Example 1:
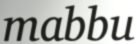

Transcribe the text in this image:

mabbu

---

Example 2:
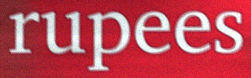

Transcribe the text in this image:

rupees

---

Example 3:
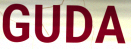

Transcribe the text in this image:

GUDA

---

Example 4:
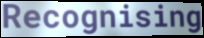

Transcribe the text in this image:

Recognising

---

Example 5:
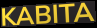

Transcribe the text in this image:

KABITA